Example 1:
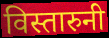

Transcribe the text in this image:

विस्तारुनी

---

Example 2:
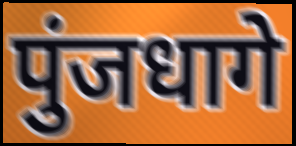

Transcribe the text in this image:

पुंजधागे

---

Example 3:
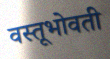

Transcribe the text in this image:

वस्तूभोवती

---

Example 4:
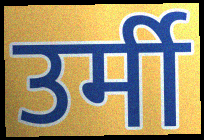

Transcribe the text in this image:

उर्मी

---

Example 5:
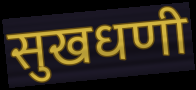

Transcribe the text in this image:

सुखधणी